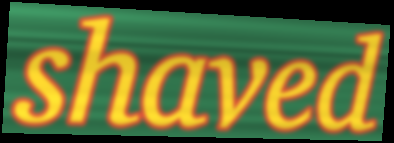
shaved